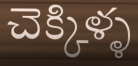
చెక్కిళ్ళ